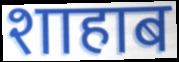
शाहाब